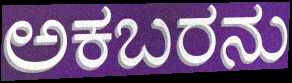
ಅಕಬರನು